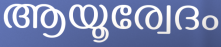
ആയൂര്വേദം